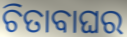
ଚିତାବାଘର